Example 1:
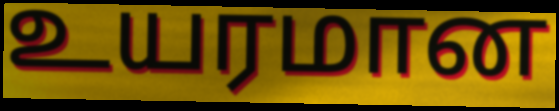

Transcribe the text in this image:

உயரமான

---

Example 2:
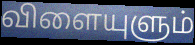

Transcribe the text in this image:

விளையுளும்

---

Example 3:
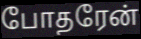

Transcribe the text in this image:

போதரேன்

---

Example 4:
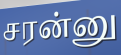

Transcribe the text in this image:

சரன்னு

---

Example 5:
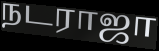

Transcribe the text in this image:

நடராஜா